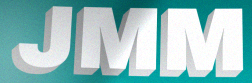
JMM